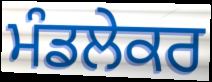
ਮੰਡਲੇਕਰ